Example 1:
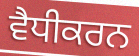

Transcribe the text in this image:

ਵੈਧੀਕਰਨ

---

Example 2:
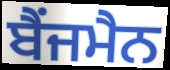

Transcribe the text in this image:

ਬੈਂਜਮੈਨ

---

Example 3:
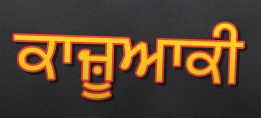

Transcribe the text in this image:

ਕਾਜ਼ੂਆਕੀ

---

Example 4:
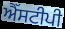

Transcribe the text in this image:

ਐੱਸਟੀਪੀ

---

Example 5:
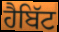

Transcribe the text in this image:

ਹੈਬਿੱਟ